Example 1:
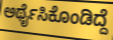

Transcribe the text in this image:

ಅರ್ಥೈಸಿಕೊಂಡಿದ್ದೆ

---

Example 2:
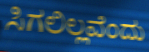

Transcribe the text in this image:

ಸಿಗಲಿಲ್ಲವೆಂದು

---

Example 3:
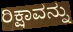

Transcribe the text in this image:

ರಿಕ್ಷಾವನ್ನು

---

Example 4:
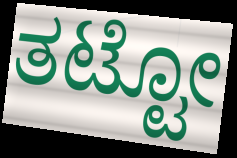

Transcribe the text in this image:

ತಟ್ಟೋ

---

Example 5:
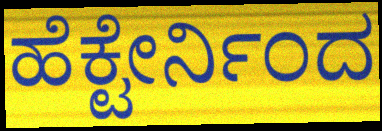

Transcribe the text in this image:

ಹೆಕ್ಟೇರ್ನಿಂದ